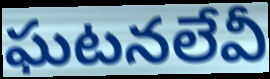
ఘటనలేవీ